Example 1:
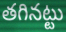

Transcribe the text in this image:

తగినట్టు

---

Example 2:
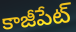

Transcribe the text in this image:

కాజీపేట్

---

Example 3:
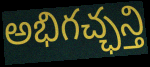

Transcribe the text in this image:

అభిగచ్ఛన్తి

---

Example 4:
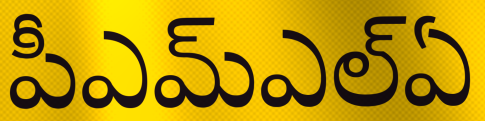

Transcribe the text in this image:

పీఎమ్ఎల్ఏ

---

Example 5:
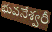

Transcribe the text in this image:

భువనేశ్వరీ